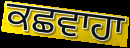
ਕਛਵਾਹਾ